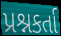
પ્રશ્નકર્તા